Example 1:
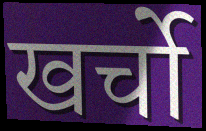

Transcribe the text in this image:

खर्चो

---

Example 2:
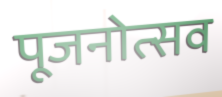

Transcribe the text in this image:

पूजनोत्सव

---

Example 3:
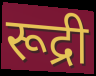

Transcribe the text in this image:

रूद्री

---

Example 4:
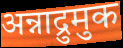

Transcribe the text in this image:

अन्नाद्रुमुक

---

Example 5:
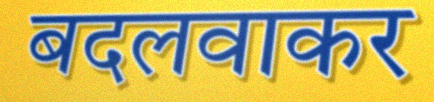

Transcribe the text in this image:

बदलवाकर